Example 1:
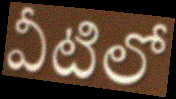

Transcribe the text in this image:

వీటిలో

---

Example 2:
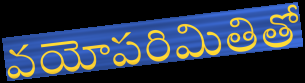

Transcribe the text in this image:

వయోపరిమితితో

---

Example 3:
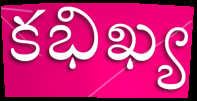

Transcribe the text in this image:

కభిఖ్య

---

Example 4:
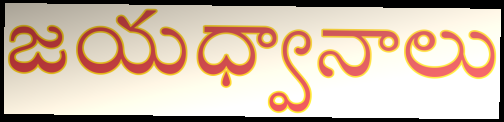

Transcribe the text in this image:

జయధ్వానాలు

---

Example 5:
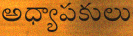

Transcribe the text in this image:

అధ్యాపకులు